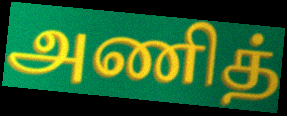
அணித்